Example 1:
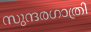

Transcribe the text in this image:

സുന്ദരഗാത്രി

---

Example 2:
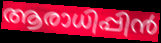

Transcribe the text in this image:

ആരാധിപ്പിൻ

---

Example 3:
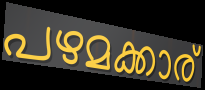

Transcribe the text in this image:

പഴമക്കാര്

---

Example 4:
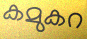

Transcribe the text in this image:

കമുകറ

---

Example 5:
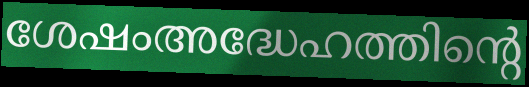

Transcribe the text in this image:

ശേഷംഅദ്ധേഹത്തിന്റെ